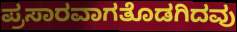
ಪ್ರಸಾರವಾಗತೊಡಗಿದವು